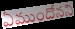
ఏముందోనని